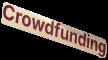
Crowdfunding